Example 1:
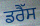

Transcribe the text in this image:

ਡਰੈੱਸ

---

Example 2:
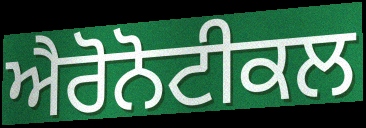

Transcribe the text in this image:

ਐਰੋਨੋਟੀਕਲ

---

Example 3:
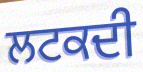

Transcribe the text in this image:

ਲਟਕਦੀ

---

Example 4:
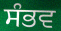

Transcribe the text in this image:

ਸੰਭਵ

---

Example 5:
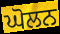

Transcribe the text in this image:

ਘੋਲਨ